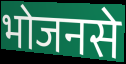
भोजनसे